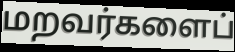
மறவர்களைப்